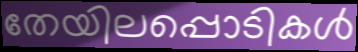
തേയിലപ്പൊടികൾ